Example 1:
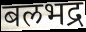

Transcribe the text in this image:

बलभद्र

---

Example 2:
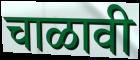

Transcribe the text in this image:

चाळावी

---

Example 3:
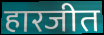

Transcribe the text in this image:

हारजीत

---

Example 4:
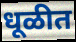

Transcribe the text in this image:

धूळीत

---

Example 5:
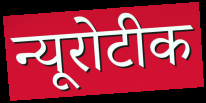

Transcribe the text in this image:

न्यूरोटीक